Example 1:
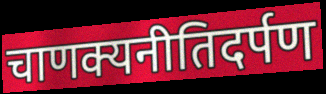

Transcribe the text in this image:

चाणक्यनीतिदर्पण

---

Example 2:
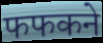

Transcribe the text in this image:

फफकने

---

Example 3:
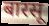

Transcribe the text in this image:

बारसू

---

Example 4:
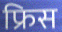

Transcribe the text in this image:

फ्रिस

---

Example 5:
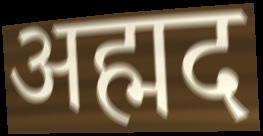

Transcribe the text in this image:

अह्मद